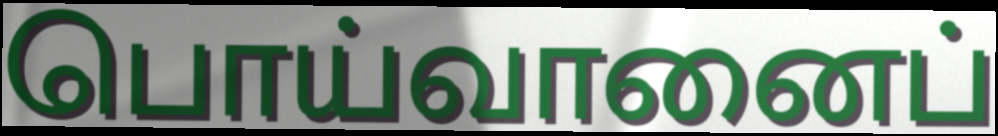
பொய்வானைப்